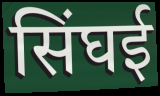
सिंघई